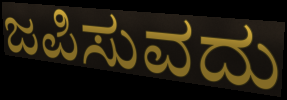
ಜಪಿಸುವದು